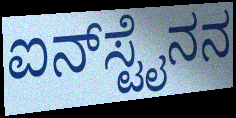
ಐನ್‌ಸ್ಟೈನನ